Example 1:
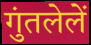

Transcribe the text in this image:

गुंतलेलें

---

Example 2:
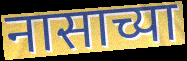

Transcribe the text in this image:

नासाच्या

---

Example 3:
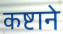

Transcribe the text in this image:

कष्टाने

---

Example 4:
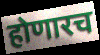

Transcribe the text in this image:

होणारच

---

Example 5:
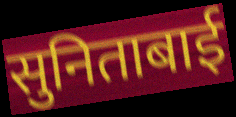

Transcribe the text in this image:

सुनिताबाई